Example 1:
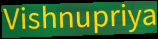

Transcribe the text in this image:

Vishnupriya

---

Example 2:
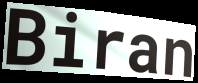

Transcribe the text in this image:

Biran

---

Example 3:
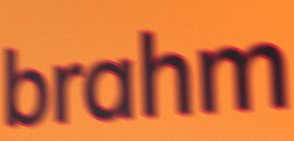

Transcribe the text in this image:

brahm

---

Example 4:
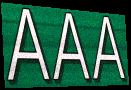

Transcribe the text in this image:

AAA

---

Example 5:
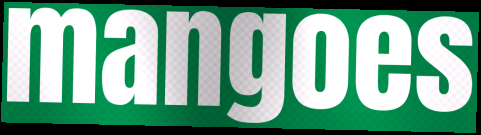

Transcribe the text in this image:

mangoes